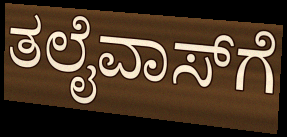
ತಲೈವಾಸ್‌ಗೆ